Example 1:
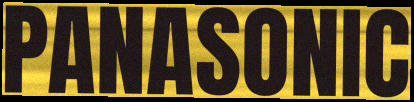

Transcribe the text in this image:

PANASONIC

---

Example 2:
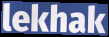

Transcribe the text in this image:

lekhak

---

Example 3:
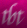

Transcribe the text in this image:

tbt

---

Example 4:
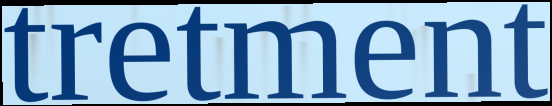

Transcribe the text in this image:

tretment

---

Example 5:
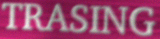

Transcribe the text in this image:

TRASING